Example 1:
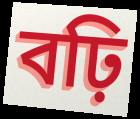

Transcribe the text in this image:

বঢ়ি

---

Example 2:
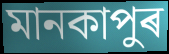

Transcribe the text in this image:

মানকাপুৰ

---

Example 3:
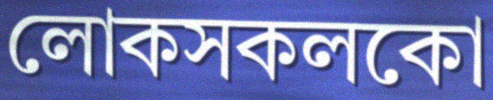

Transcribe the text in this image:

লোকসকলকো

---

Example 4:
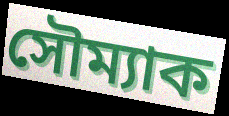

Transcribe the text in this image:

সৌম্যাক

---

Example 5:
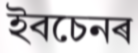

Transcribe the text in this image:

ইবচেনৰ